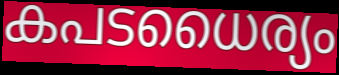
കപടധൈര്യം